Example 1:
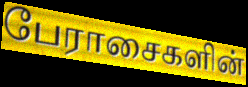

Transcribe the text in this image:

பேராசைகளின்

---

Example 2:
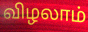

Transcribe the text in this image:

விழலாம்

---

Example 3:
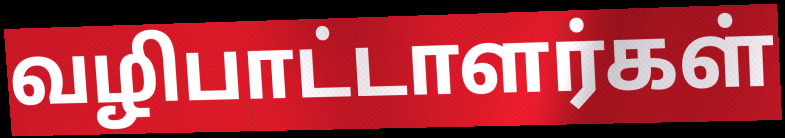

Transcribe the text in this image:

வழிபாட்டாளர்கள்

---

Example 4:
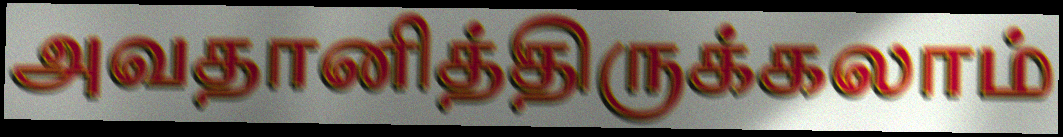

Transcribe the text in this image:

அவதானித்திருக்கலாம்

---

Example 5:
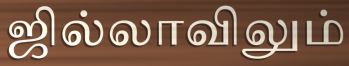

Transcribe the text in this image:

ஜில்லாவிலும்